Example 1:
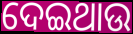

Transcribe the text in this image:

ଦେଇଥାଉ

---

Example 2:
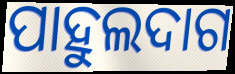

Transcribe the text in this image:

ପାହୁଲଦାଗ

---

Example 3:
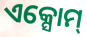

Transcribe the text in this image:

ଏକ୍ସୋମ୍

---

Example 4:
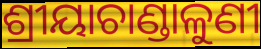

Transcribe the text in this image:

ଶ୍ରୀୟାଚାଣ୍ଡାଳୁଣୀ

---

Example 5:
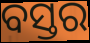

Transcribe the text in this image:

ବସ୍ତର